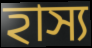
হাস্য